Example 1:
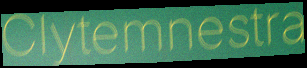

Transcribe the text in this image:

Clytemnestra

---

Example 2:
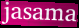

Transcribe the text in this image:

jasama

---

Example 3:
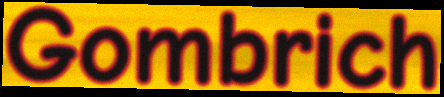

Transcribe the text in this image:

Gombrich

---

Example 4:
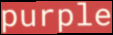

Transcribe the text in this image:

purple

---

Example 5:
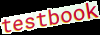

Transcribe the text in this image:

testbook